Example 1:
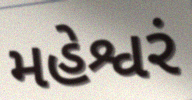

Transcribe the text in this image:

મહેશ્વરં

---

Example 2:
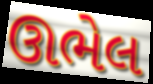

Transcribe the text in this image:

ઊભેલ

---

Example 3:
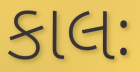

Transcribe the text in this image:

કાલઃ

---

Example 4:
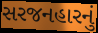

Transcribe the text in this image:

સરજનહારનું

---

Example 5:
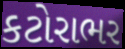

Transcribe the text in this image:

કટોરાભર